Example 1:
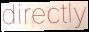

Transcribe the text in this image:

directly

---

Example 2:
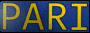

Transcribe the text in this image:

PARI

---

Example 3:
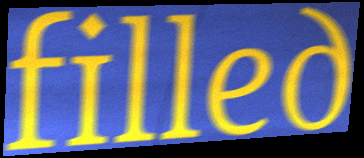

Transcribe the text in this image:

filled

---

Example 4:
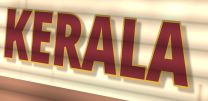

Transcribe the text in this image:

KERALA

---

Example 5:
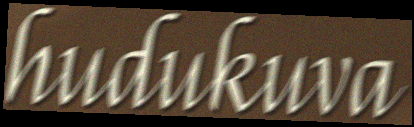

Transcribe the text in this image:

hudukuva